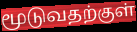
மூடுவதற்குள்